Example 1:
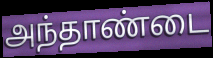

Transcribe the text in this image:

அந்தாண்டை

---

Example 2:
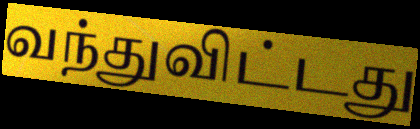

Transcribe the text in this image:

வந்துவிட்டது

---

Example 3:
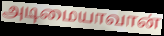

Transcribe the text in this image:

அடிமையாவான்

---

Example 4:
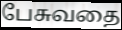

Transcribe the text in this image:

பேசுவதை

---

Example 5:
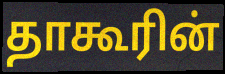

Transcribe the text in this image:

தாகூரின்